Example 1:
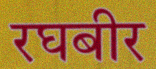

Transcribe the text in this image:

रघबीर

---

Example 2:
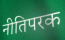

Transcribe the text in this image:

नीतिपरक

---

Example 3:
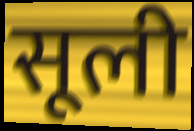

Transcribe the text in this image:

सूली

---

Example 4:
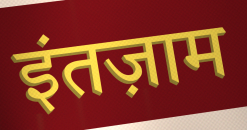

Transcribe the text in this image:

इंतज़ाम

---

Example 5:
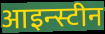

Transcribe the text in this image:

आइन्स्टीन